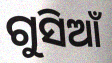
ଗୁସିଆଁ